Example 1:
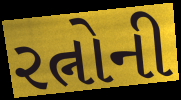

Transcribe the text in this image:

રત્નોની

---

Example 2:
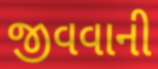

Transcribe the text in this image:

જીવવાની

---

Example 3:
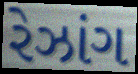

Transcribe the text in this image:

રેઝાંગ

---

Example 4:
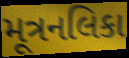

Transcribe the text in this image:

મૂત્રનલિકા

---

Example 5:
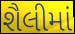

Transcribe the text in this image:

શૈલીમાં